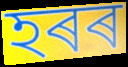
হৰৰ